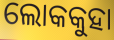
ଲୋକକୁହା